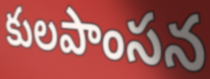
కులపాంసన